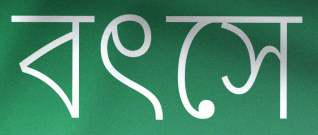
বৎসে